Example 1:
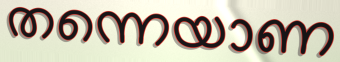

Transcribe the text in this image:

തന്നെയാണ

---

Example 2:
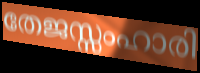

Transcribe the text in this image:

തേജസ്സംഹാരി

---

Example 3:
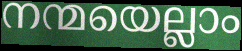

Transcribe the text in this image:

നന്മയെല്ലാം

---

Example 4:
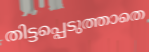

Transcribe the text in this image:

തിട്ടപ്പെടുത്താതെ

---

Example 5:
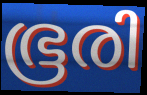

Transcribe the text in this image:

ഭൂരി